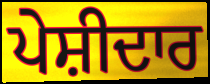
ਪੇਸ਼ੀਦਾਰ